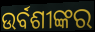
ଉର୍ବଶୀଙ୍କର